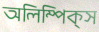
অলিম্পিক্‌স